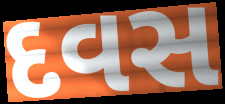
દવસ